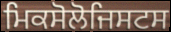
ਮਿਕਸੋਲੋਜਿਸਟਸ